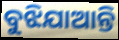
ବୁଝିଯାଆନ୍ତି